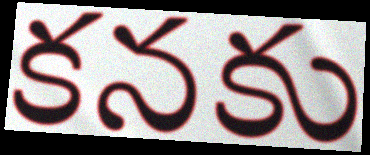
కనకు